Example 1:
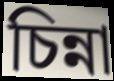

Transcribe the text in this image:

চিন্না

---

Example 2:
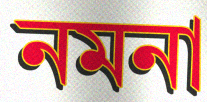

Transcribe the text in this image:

নমনা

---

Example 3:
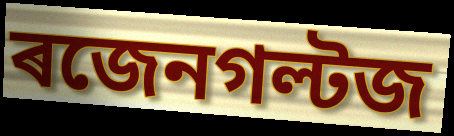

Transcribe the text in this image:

ৰজেনগল্টজ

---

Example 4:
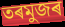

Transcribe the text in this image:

তৰমুজৰ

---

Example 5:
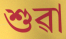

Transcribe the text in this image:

শুৱা